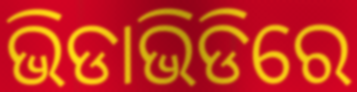
ଭିଡାଭିଡିରେ